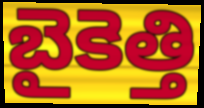
బైకెత్తి